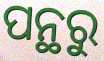
ପନ୍ଥରୁ